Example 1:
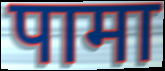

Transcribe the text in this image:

पामा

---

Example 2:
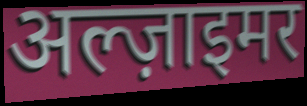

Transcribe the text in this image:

अल्ज़ाइमर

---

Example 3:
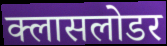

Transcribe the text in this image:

क्लासलोडर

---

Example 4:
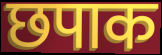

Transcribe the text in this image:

छपाक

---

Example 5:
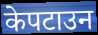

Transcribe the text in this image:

केपटाउन